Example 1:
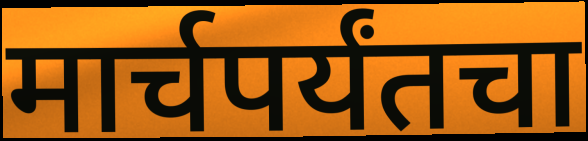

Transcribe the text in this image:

मार्चपर्यंतचा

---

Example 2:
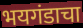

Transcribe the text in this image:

भयगंडाचा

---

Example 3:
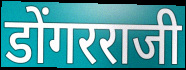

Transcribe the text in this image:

डोंगरराजी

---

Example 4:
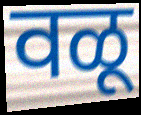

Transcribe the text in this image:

वळू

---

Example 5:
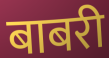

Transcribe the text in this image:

बाबरी